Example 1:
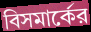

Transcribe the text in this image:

বিসমার্কের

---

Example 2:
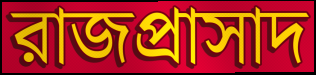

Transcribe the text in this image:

রাজপ্রাসাদ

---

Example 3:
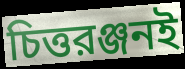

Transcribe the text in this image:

চিত্তরঞ্জনই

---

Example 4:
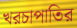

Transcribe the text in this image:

খরচাপাতির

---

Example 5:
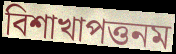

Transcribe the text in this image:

বিশাখাপত্তনম